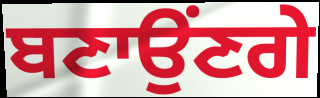
ਬਣਾਉਂਣਗੇ